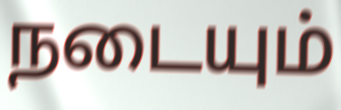
நடையும்